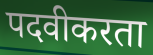
पदवीकरता